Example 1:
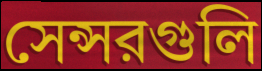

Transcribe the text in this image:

সেন্সরগুলি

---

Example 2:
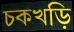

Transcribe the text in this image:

চকখড়ি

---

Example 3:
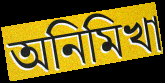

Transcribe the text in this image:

অনিমিখা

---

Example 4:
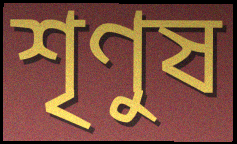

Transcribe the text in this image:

শৃণুষ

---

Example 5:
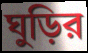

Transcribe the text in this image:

ঘুড়ির